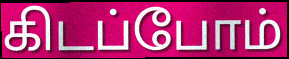
கிடப்போம்